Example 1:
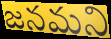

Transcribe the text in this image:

జనమని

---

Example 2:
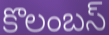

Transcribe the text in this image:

కొలంబస్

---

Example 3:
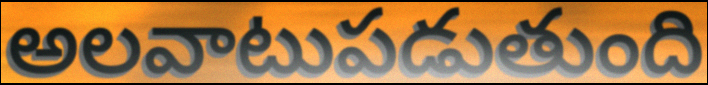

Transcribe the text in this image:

అలవాటుపడుతుంది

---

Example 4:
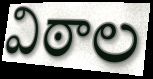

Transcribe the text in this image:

విఠాల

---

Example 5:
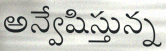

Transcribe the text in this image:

అన్వేషిస్తున్న